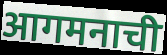
आगमनाची